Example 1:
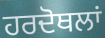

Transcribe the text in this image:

ਹਰਦੋਥਲਾਂ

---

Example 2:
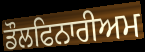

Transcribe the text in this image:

ਡੌਲਫਿਨਾਰੀਅਮ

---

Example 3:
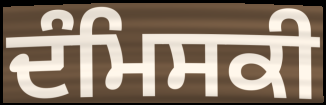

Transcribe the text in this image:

ਦੰਮਿਸਕੀ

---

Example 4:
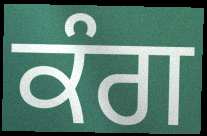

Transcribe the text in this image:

ਕੰਗ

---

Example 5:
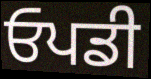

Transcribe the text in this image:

ਓਪਡੀ